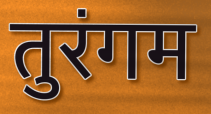
तुरंगम